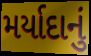
મર્યાદાનું